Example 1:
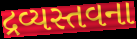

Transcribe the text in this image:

દ્રવ્યસ્તવના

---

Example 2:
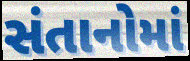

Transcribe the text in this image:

સંતાનોમાં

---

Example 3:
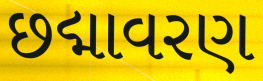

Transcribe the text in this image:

છદ્માવરણ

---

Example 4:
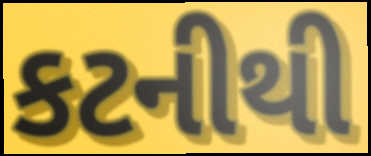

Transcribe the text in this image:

કટનીથી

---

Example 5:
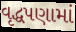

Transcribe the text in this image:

વૃદ્ધપણામાં